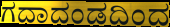
ಗದಾದಂಡದಿಂದ